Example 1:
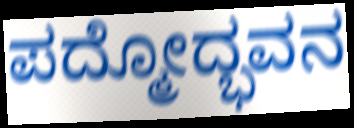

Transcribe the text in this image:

ಪದ್ಮೋದ್ಭವನ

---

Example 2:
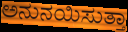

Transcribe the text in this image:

ಅನುನಯಿಸುತ್ತಾ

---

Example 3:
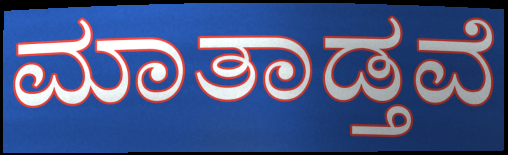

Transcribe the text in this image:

ಮಾತಾಡ್ತವೆ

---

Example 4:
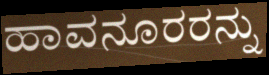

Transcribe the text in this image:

ಹಾವನೂರರನ್ನು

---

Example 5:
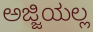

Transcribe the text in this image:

ಅಜ್ಜಿಯಲ್ಲ